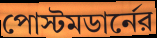
পোস্টমডার্নের